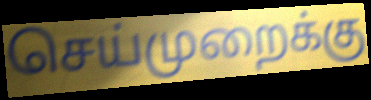
செய்முறைக்கு